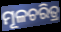
ମୂଳଚରିତ୍ର